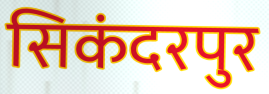
सिकंदरपुर